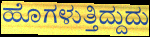
ಹೊಗಳುತ್ತಿದ್ದುದು